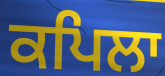
ਕਪਿਲਾ